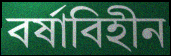
বর্ষাবিহীন